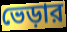
ভেড়ার